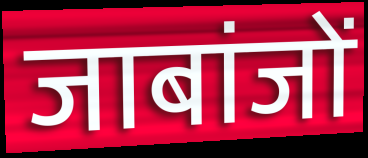
जाबांजों